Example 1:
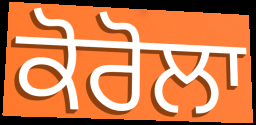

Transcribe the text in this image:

ਕੋਰੋਲਾ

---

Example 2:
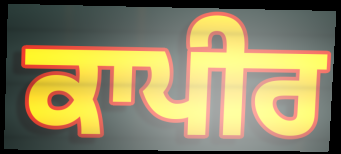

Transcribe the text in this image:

ਕਾਪੀਰ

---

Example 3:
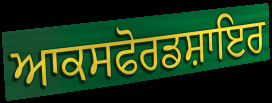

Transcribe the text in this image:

ਆਕਸਫੋਰਡਸ਼ਾਇਰ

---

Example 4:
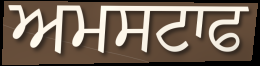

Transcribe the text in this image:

ਅਮਸਟਾਫ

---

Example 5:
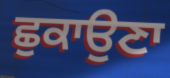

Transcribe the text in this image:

ਛੁਕਾਉਣਾ